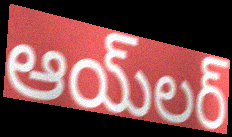
ఆయ్‌లర్